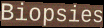
Biopsies